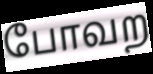
போவற